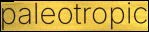
paleotropic